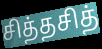
சித்தசித்